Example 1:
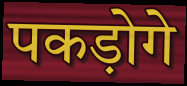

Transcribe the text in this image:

पकड़ोगे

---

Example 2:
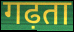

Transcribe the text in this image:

गढ़ता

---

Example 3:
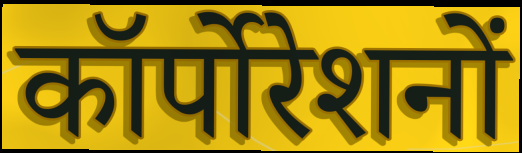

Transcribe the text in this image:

कॉर्पोरेशनों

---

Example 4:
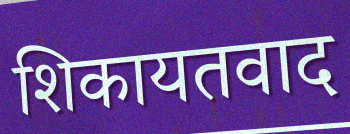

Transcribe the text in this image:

शिकायतवाद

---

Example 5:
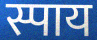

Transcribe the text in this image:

स्पाय